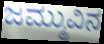
ಜಮ್ಮುವಿನ